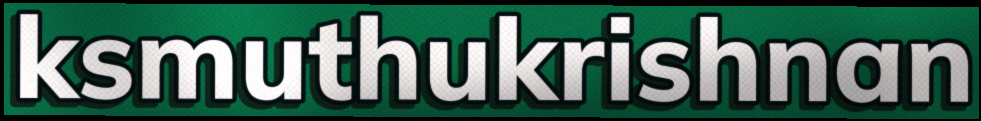
ksmuthukrishnan